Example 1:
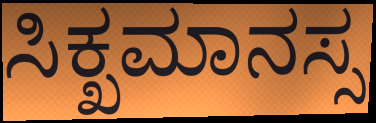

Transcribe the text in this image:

ಸಿಕ್ಖಮಾನಸ್ಸ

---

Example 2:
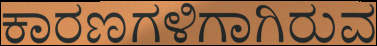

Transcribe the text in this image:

ಕಾರಣಗಳಿಗಾಗಿರುವ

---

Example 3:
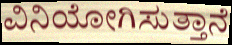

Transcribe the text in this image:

ವಿನಿಯೋಗಿಸುತ್ತಾನೆ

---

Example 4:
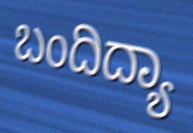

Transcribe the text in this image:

ಬಂದಿದ್ಯಾ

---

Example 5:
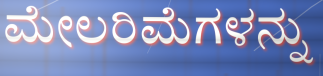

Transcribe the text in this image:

ಮೇಲರಿಮೆಗಳನ್ನು